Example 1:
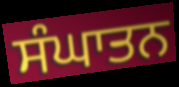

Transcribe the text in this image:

ਸੰਘਾਤਨ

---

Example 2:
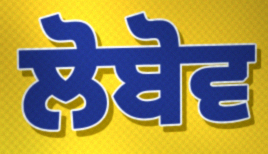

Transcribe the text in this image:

ਲੋਬੋਵ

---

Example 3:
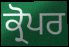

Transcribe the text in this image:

ਕ੍ਰੋਪਰ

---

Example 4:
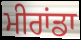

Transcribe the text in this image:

ਮੀਰਾਂਡਾ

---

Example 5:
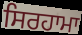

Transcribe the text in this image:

ਸਿਰਹਾਮਾ